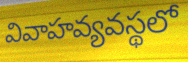
వివాహవ్యవస్థలో